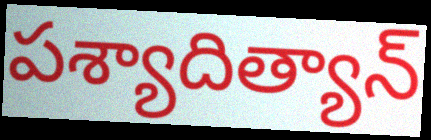
పశ్యాదిత్యాన్